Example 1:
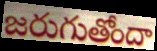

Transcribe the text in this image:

జరుగుతోందా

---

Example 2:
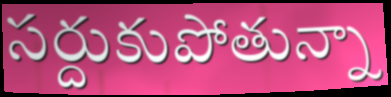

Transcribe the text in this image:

సర్దుకుపోతున్నా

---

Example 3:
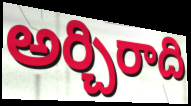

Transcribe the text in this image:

అర్చిరాది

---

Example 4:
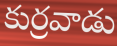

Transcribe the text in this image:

కుర్రవాడు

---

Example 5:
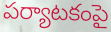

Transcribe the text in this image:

పర్యాటకంపై